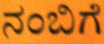
ನಂಬಿಗೆ